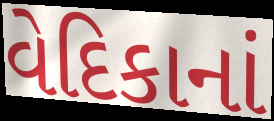
વેદિકાનાં